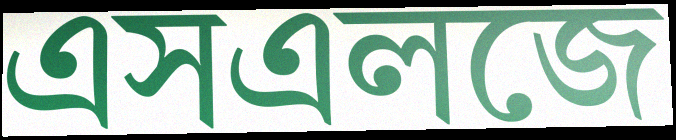
এসএলজে